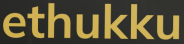
ethukku